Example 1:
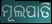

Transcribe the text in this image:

ମୂଲପାତି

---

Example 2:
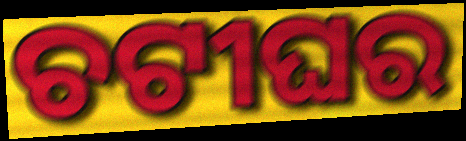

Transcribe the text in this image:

ଚଟୀଘର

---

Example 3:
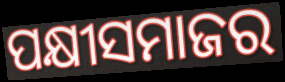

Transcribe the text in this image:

ପକ୍ଷୀସମାଜର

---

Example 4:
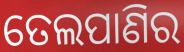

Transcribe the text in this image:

ତେଲପାଣିର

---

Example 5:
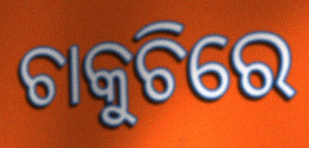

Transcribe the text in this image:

ଚାକୁଚିରେ